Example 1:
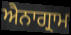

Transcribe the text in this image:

ਐਨਾਗ੍ਰਾਮ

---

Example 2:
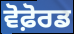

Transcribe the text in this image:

ਵੋਫ਼ੋਰਡ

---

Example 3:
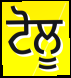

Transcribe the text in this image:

ਟੋਲੂ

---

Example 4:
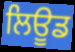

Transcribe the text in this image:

ਲਿਊਡ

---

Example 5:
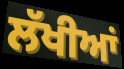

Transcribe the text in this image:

ਲੱਖੀਆਂ